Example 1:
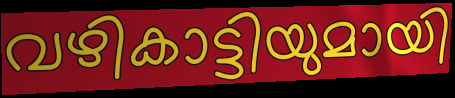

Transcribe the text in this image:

വഴികാട്ടിയുമായി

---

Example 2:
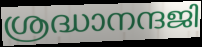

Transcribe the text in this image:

ശ്രദ്ധാനന്ദജി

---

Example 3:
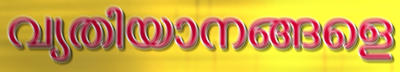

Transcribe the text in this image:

വ്യതിയാനങ്ങളെ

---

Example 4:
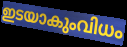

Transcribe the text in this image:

ഇടയാകുംവിധം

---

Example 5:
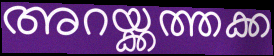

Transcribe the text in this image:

അറയ്ക്കത്തക്ക